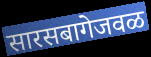
सारसबागेजवळ